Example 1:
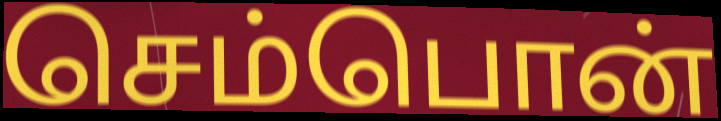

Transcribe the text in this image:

செம்பொன்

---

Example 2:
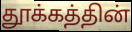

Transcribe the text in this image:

தூக்கத்தின்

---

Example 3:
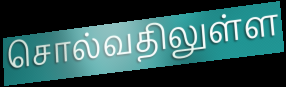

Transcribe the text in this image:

சொல்வதிலுள்ள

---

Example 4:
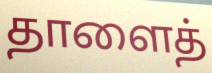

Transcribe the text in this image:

தாளைத்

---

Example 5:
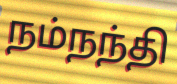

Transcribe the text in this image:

நம்நந்தி